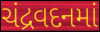
ચંદ્રવદનમાં